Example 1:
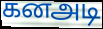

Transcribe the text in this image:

கனஅடி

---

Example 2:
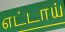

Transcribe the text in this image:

எட்டாய்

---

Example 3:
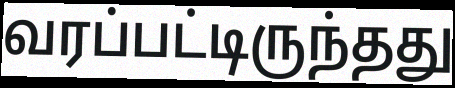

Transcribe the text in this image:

வரப்பட்டிருந்தது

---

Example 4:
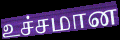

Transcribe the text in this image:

உச்சமான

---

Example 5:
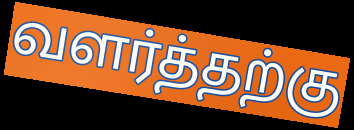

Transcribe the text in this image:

வளர்த்தற்கு